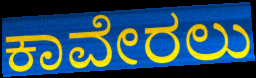
ಕಾವೇರಲು